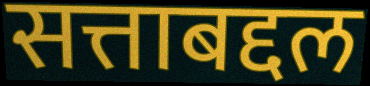
सत्ताबद्दल